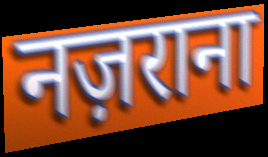
नज़राना